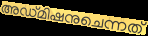
അഡ്മിഷനുചെന്നത്